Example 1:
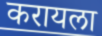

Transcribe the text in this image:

करायला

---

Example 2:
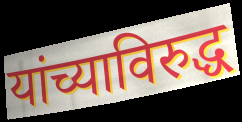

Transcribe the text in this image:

यांच्याविरुद्ध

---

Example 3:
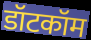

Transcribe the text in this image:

डॉटकॉम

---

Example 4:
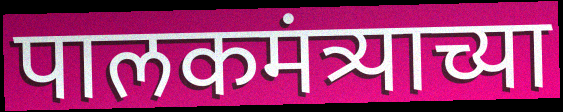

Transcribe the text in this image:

पालकमंत्र्याच्या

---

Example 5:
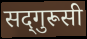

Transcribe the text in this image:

सद्‍गुरूसी